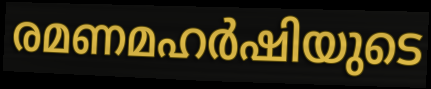
രമണമഹർഷിയുടെ